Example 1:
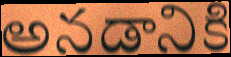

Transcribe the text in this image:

అనడానికి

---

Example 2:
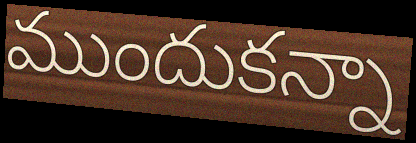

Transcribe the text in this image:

ముందుకన్నా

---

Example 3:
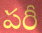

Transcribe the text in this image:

పరీ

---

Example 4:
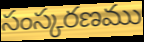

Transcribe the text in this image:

సంస్కరణము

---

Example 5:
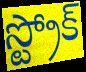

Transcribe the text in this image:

స్ట్రోక్